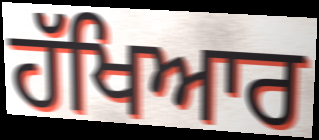
ਹੱਖਿਆਰ